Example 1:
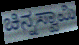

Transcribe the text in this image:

ಚಿನ್ನಸ್ವಾಮಿ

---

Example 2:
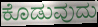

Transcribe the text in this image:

ಕೊಡುವುದು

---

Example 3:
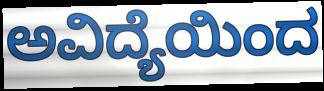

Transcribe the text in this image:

ಅವಿದ್ಯೆಯಿಂದ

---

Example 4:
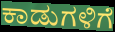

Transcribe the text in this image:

ಕಾಡುಗಳಿಗೆ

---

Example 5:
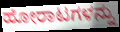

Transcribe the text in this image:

ಹೋರಾಟಗಳನ್ನು